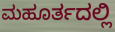
ಮಹೂರ್ತದಲ್ಲಿ